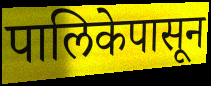
पालिकेपासून